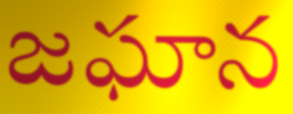
జఘాన